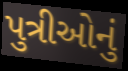
પુત્રીઓનું